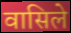
वासिले